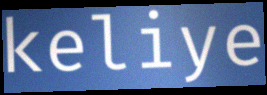
keliye